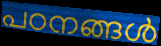
പഠനങ്ങൾ